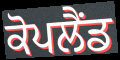
ਕੋਪਲੈਂਡ